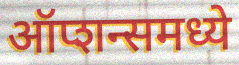
ऑप्शन्समध्ये